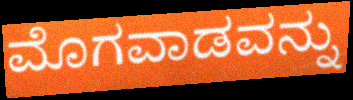
ಮೊಗವಾಡವನ್ನು